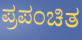
ಪ್ರಪಂಚಿತ